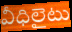
వీధిలైటు